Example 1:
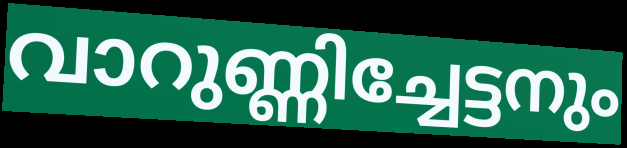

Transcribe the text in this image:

വാറുണ്ണിച്ചേട്ടനും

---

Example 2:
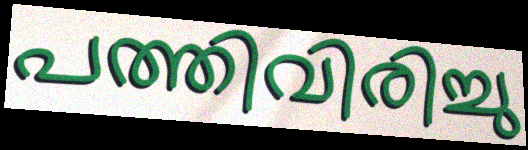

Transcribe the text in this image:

പത്തിവിരിച്ചു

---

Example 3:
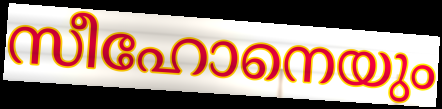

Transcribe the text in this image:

സീഹോനെയും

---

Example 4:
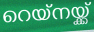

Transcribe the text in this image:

റെയ്നയ്ക്ക്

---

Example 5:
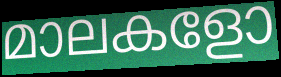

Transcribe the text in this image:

മാലകളോ